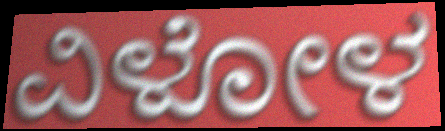
ವಿಳೋಳ